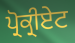
ਪ੍ਰੋਕ੍ਰੀਏਟ